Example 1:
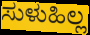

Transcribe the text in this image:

ಸುಳುಹಿಲ್ಲ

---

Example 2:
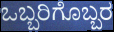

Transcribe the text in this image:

ಒಬ್ಬರಿಗೊಬ್ಬರ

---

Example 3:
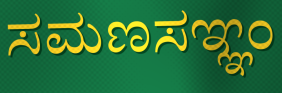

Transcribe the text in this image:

ಸಮಣಸಞ್ಞಂ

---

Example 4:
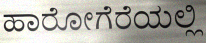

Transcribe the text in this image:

ಹಾರೋಗೆರೆಯಲ್ಲಿ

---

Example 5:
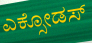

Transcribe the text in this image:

ಎಕ್ಸೋಡಸ್